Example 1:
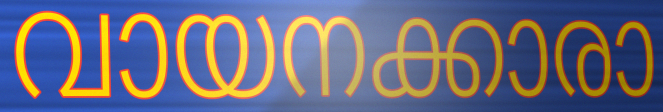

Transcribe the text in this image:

വായനക്കാരാ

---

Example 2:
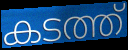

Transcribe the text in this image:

കടത്ത്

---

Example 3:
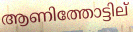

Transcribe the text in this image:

ആണിത്തോട്ടില്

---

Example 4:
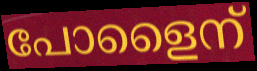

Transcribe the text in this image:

പോളൈന്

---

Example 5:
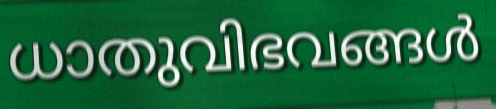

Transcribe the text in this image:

ധാതുവിഭവങ്ങൾ